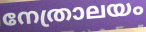
നേത്രാലയം